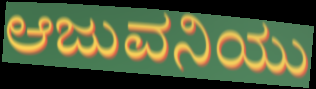
ಆಜುವನಿಯು